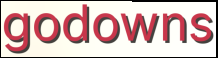
godowns